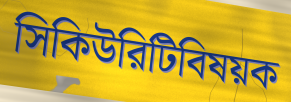
সিকিউরিটিবিষয়ক